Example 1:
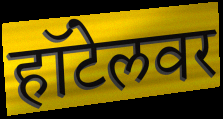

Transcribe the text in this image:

हॉटेलवर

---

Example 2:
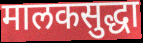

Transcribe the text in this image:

मालकसुद्धा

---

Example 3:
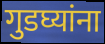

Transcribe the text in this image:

गुडघ्यांना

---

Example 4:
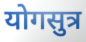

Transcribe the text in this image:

योगसुत्र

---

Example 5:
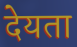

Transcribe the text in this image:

देयता